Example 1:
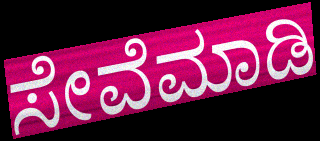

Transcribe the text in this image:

ಸೇವೆಮಾಡಿ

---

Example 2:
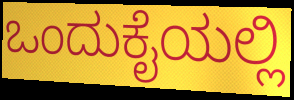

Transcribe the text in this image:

ಒಂದುಕೈಯಲ್ಲಿ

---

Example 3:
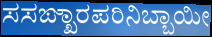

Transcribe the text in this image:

ಸಸಙ್ಖಾರಪರಿನಿಬ್ಬಾಯೀ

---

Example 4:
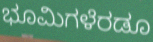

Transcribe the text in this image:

ಭೂಮಿಗಳೆರಡೂ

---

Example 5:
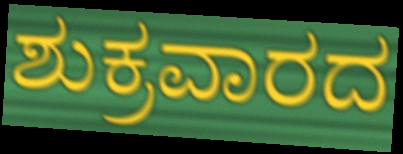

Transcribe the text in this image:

ಶುಕ್ರವಾರದ